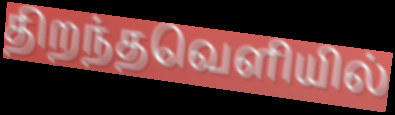
திறந்தவெளியில்